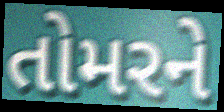
તોમરને